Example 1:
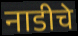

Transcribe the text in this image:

नाडीचे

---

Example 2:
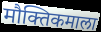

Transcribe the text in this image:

मौक्तिकमाला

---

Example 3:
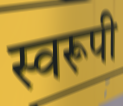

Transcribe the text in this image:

स्वरूपी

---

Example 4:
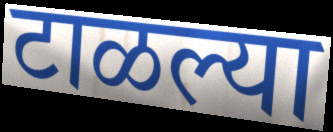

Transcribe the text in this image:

टाळल्या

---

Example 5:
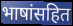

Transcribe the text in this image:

भाषांसहित